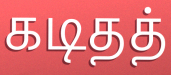
கடிதத்